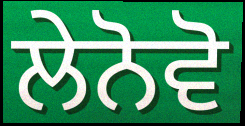
ਲੇਨੋਵੋ